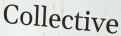
Collective